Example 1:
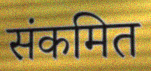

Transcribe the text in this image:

संकमित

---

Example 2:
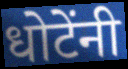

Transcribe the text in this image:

धोटेंनी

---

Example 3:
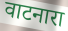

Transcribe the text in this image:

वाटनारा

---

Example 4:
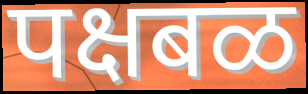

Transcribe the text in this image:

पक्षबळ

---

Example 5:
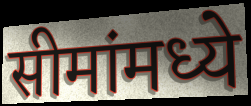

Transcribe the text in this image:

सीमांमध्ये